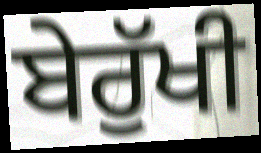
ਬੇਰੁੱਖੀ